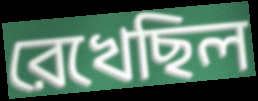
রেখেছিল